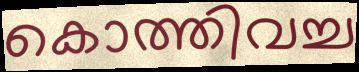
കൊത്തിവച്ച